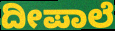
ದೀಪಾಲೆ